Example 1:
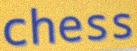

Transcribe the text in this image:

chess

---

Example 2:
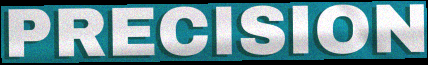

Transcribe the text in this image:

PRECISION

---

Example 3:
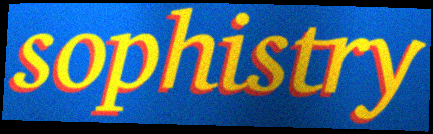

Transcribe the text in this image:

sophistry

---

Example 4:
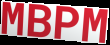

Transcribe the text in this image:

MBPM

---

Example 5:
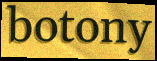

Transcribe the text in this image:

botony